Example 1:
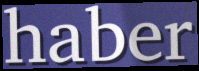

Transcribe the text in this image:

haber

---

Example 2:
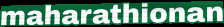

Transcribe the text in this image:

maharathionan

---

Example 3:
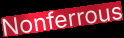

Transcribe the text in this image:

Nonferrous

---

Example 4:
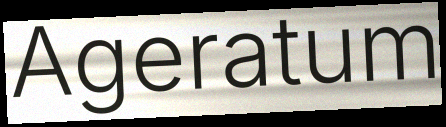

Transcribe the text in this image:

Ageratum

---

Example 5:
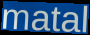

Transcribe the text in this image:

matal